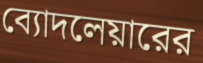
ব্যোদলেয়ারের